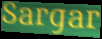
Sargar